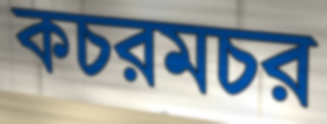
কচরমচর